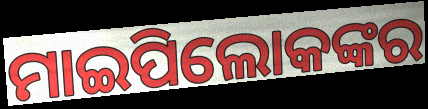
ମାଇପିଲୋକଙ୍କର